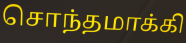
சொந்தமாக்கி